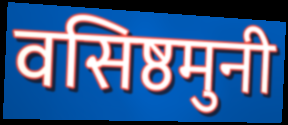
वसिष्ठमुनी